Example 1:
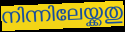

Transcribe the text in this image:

നിന്നിലേയ്ക്കതു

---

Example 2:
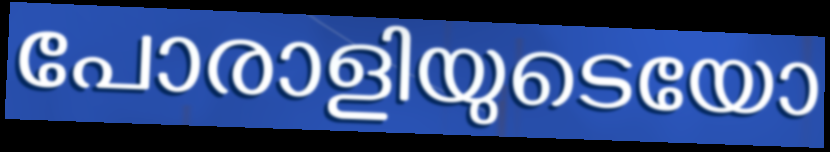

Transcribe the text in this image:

പോരാളിയുടെയോ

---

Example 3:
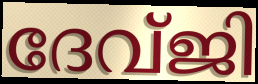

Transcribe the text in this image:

ദേവ്ജി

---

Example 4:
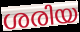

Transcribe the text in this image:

ശരിയ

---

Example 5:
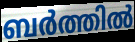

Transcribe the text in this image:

ബർത്തിൽ